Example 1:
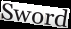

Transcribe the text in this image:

Sword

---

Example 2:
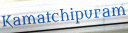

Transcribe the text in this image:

Kamatchipuram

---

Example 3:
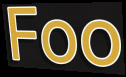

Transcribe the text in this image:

Foo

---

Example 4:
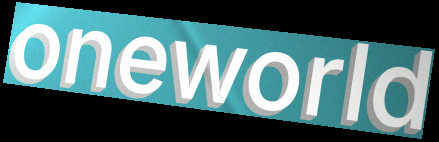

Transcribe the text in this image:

oneworld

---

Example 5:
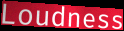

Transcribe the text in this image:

Loudness